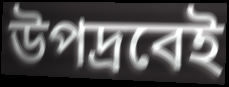
উপদ্রবেই